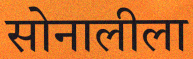
सोनालीला